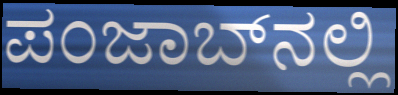
ಪಂಜಾಬ್‌ನಲ್ಲಿ